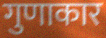
गुणाकार